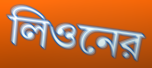
লিওনের